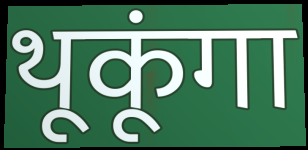
थूकूंगा